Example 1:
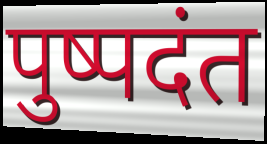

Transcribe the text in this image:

पुष्पदंत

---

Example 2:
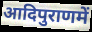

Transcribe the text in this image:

आदिपुराणमें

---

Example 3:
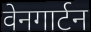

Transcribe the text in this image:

वेनगार्टन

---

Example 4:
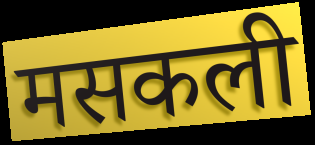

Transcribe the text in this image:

मसकली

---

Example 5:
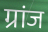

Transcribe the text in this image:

ग्रांज